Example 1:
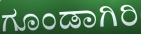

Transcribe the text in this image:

ಗೂಂಡಾಗಿರಿ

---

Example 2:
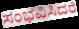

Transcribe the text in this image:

ಸಂಭವಿಸಿದರೆ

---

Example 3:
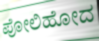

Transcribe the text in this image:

ಪೋಲಿಹೋದ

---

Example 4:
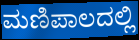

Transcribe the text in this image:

ಮಣಿಪಾಲದಲ್ಲಿ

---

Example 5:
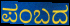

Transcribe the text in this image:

ಪಂಬದ